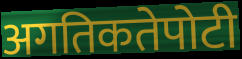
अगतिकतेपोटी